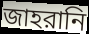
জাহরানি